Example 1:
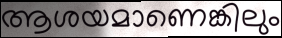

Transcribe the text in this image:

ആശയമാണെങ്കിലും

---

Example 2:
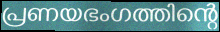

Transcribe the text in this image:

പ്രണയഭംഗത്തിന്റെ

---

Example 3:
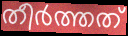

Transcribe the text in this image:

തീർത്തത്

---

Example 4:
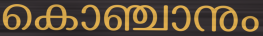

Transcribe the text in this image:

കൊഞ്ചാനും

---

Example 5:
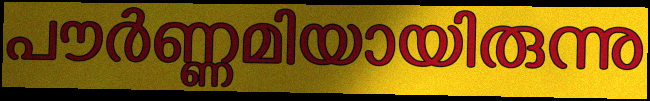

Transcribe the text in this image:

പൗർണ്ണമിയായിരുന്നു